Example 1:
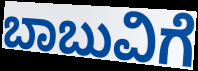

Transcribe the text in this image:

ಬಾಬುವಿಗೆ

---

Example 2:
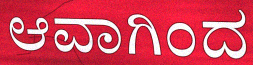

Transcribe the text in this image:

ಆವಾಗಿಂದ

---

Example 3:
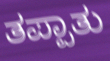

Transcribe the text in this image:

ತಪ್ಪಾತು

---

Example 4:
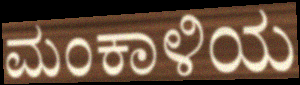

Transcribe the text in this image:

ಮಂಕಾಳಿಯ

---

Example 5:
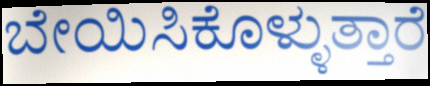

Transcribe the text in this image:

ಬೇಯಿಸಿಕೊಳ್ಳುತ್ತಾರೆ